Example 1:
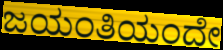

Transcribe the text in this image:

ಜಯಂತಿಯಂದೇ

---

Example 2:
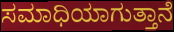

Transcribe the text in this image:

ಸಮಾಧಿಯಾಗುತ್ತಾನೆ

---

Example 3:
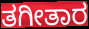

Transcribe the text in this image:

ತಗೀತಾರ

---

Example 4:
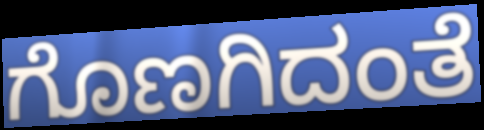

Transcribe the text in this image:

ಗೊಣಗಿದಂತೆ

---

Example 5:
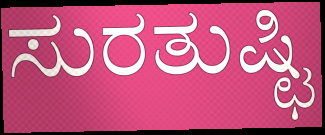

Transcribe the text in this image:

ಸುರತುಷ್ಟಿ